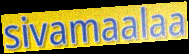
sivamaalaa